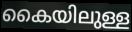
കൈയിലുള്ള